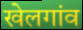
खेलगांव